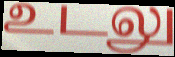
உடலு